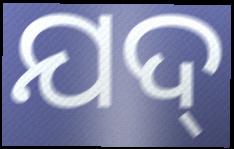
ଯଦ୍